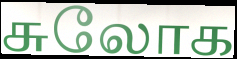
சுலோக